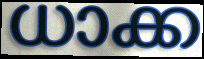
ധാക്ക